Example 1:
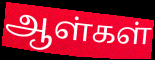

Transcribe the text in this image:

ஆள்கள்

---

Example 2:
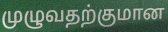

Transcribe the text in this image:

முழுவதற்குமான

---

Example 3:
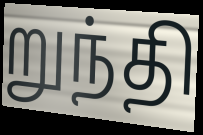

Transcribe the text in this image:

றுந்தி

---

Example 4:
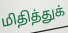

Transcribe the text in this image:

மிதித்துக்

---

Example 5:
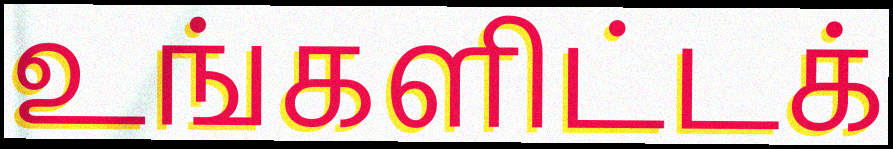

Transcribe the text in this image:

உங்களிட்டக்